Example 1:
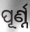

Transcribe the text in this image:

ପୂର୍ଣ୍ନ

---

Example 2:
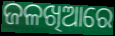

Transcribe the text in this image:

ଜଳଖିଆରେ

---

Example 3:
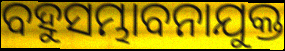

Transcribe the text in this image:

ବହୁସମ୍ଭାବନାଯୁକ୍ତ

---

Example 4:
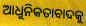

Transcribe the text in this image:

ଆଧୁନିକତାବାଦକୁ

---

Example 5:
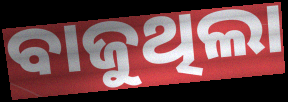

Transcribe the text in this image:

ବାଜୁଥିଲା